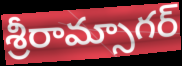
శ్రీరామ్సాగర్